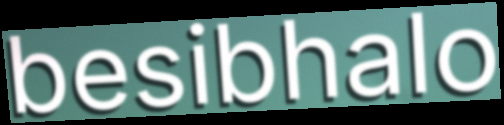
besibhalo